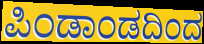
ಪಿಂಡಾಂಡದಿಂದ